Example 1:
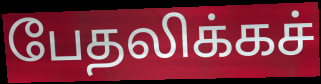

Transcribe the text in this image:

பேதலிக்கச்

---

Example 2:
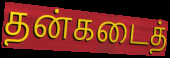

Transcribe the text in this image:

தன்கடைத்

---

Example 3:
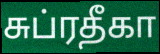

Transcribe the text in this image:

சுப்ரதீகா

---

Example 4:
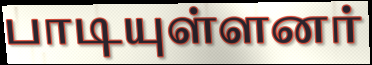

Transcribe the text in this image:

பாடியுள்ளனர்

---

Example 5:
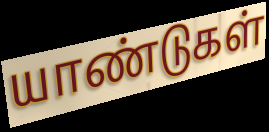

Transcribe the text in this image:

யாண்டுகள்